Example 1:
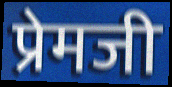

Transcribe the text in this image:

प्रेमजी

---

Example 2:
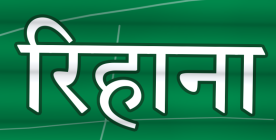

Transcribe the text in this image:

रिहाना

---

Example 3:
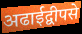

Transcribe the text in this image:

अढाईद्वीपसे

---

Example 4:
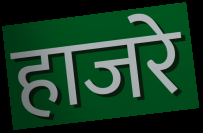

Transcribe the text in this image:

हाजरे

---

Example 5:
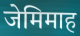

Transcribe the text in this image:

जेमिमाह